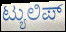
ಟ್ಯುಲಿಪ್